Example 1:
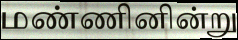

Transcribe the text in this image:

மண்ணினின்று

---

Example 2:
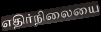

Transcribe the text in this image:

எதிர்நிலையை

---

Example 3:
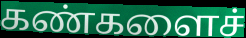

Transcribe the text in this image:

கண்களைச்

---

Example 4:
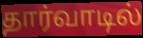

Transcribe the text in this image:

தார்வாடில்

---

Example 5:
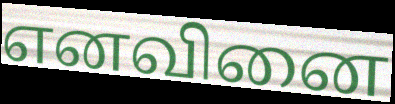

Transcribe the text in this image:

எனவினை